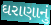
ઘરાણાનું